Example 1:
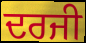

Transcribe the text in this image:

ਦਰਜੀ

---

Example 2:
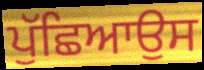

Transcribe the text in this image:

ਪੁੱਛਿਆਉਸ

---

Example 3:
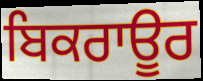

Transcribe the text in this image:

ਬਿਕਰਾਊਰ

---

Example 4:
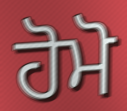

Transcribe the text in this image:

ਹੋਮੋ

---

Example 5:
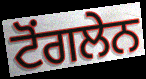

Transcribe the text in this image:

ਟੋਂਗਲੇਨ